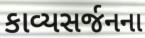
કાવ્યસર્જનના